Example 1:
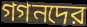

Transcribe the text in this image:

গগনদের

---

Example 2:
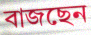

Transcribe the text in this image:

বাজছেন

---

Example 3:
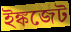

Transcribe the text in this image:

ইঙ্কজেট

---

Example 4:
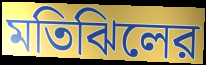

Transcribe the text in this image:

মতিঝিলের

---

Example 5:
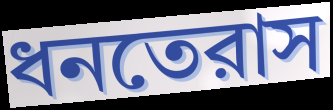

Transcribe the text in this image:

ধনতেরাস